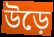
উড়ে